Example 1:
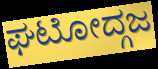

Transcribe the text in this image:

ಘಟೋದ್ಗಜ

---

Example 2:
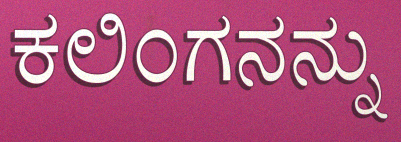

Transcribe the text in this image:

ಕಲಿಂಗನನ್ನು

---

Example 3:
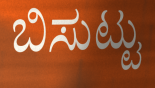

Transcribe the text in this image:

ಬಿಸುಟ್ಟು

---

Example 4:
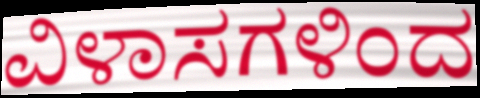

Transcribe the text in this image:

ವಿಳಾಸಗಳಿಂದ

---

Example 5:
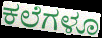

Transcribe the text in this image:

ಕಲೆಗಳೂ